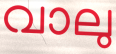
വാലു